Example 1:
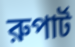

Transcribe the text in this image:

রুপার্ট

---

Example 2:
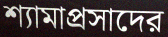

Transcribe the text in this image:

শ্যামাপ্রসাদের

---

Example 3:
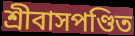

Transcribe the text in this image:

শ্রীবাসপণ্ডিত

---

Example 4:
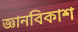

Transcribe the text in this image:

জ্ঞানবিকাশ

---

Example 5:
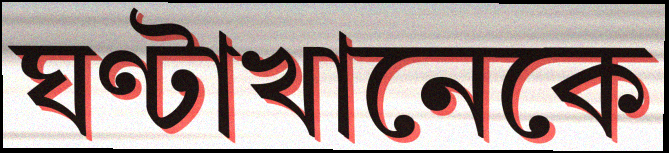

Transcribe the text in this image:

ঘণ্টাখানেকে